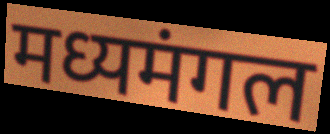
मध्यमंगल